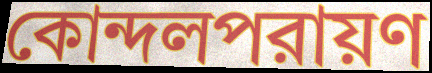
কোন্দলপরায়ণ